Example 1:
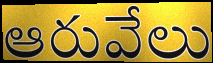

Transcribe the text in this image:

ఆరువేలు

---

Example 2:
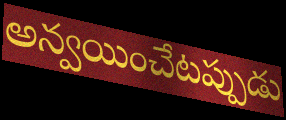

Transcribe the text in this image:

అన్వయించేటప్పుడు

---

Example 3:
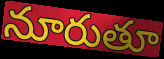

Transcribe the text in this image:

నూరుతూ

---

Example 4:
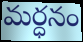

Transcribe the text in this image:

మర్ధనం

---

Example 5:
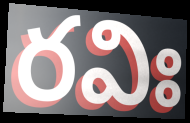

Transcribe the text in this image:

రవిః